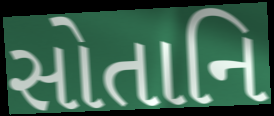
સોતાનિ